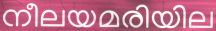
നീലയമരിയില